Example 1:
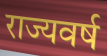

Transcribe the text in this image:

राज्यवर्ष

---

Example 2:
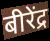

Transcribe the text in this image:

बीरेंद्र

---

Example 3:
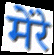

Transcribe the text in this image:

मेंरे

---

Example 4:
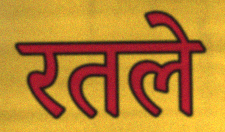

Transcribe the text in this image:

रतले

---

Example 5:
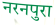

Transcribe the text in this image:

नरनपुरा